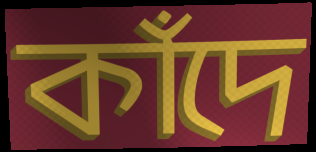
কাঁদে